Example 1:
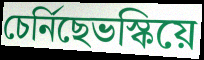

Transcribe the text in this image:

চেৰ্নিছেভস্কিয়ে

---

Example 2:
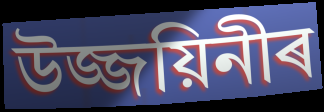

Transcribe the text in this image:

উজ্জয়িনীৰ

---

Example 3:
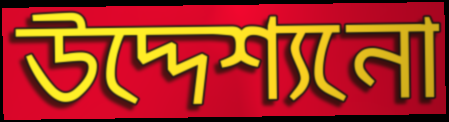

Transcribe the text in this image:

উদ্দেশ্যনো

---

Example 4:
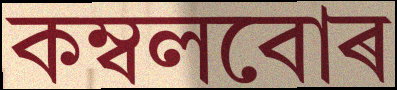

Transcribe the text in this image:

কম্বলবোৰ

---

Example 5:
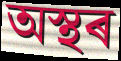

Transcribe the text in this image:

অস্থৰ